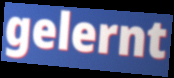
gelernt